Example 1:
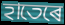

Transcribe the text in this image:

হাতেৰে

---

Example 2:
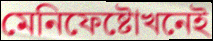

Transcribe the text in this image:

মেনিফেষ্টোখনেই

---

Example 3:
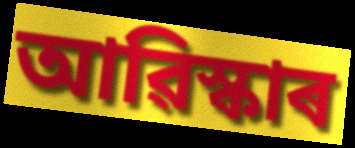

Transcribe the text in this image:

আৱিস্কাৰ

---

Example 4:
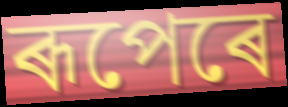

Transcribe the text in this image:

ৰূপেৰে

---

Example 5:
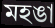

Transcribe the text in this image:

মহঙা